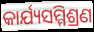
କାର୍ଯ୍ୟସମ୍ମିଶ୍ରଣ